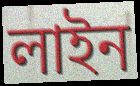
লাইন